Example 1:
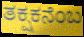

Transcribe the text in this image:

ತಕ್ಷಕನೆಂಬ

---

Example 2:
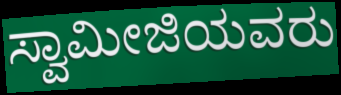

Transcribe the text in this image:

ಸ್ವಾಮೀಜಿಯವರು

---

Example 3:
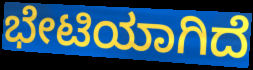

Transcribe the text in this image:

ಭೇಟಿಯಾಗಿದೆ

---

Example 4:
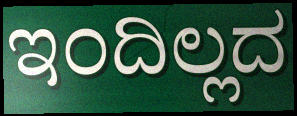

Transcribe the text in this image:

ಇಂದಿಲ್ಲದ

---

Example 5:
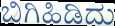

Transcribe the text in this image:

ಬಿಗಿಹಿಡಿದು